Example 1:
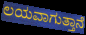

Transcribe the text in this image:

ಲಯವಾಗುತ್ತಾನೆ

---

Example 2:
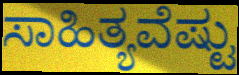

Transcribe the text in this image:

ಸಾಹಿತ್ಯವೆಷ್ಟು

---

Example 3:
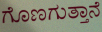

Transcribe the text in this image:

ಗೊಣಗುತ್ತಾನೆ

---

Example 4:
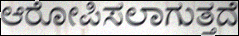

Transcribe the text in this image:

ಆರೋಪಿಸಲಾಗುತ್ತದೆ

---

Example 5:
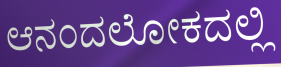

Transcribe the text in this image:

ಆನಂದಲೋಕದಲ್ಲಿ